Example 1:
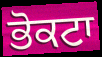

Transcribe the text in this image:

ਭੋਕਟਾ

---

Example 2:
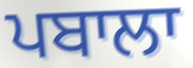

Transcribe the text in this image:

ਪਬਾਲਾ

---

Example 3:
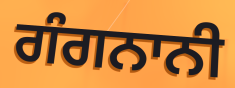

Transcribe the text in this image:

ਗੰਗਨਾਨੀ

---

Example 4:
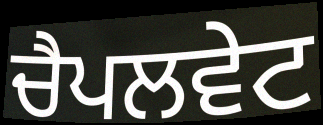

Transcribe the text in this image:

ਚੈਪਲਵੇਟ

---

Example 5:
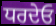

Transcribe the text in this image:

ਧਰਦੇਓ